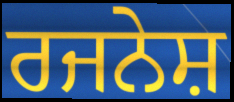
ਰਜਨੇਸ਼